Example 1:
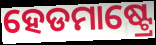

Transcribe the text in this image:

ହେଡମାଷ୍ଟ୍ରେ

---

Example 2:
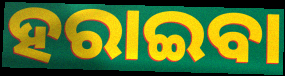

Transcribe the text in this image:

ହରାଇବା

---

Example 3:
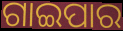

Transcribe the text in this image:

ଗାଇପାର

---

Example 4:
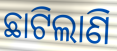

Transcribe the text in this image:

ଛାଟିଲାଣି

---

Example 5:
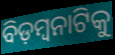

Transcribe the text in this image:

ବିଡ଼ମ୍ବନାଟିକୁ